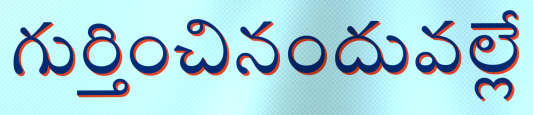
గుర్తించినందువల్లే